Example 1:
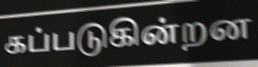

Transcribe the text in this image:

கப்படுகின்றன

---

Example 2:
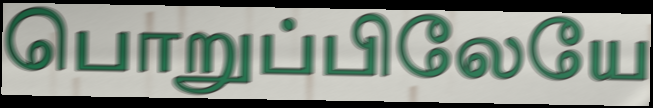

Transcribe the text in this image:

பொறுப்பிலேயே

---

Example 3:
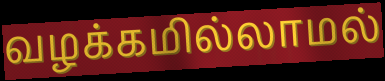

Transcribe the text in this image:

வழக்கமில்லாமல்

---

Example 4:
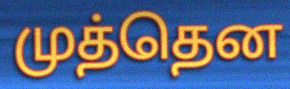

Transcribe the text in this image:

முத்தென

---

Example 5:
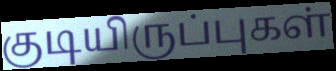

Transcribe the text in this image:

குடியிருப்புகள்